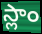
స్లాం